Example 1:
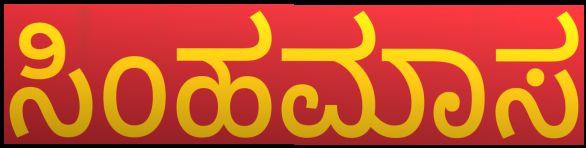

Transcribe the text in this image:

ಸಿಂಹಮಾಸ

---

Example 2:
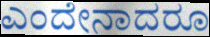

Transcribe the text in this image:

ಎಂದೇನಾದರೂ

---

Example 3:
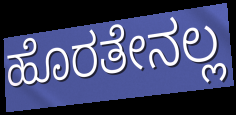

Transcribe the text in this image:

ಹೊರತೇನಲ್ಲ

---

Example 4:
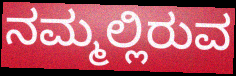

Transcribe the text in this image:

ನಮ್ಮಲ್ಲಿರುವ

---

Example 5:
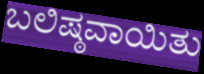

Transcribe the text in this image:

ಬಲಿಷ್ಠವಾಯಿತು